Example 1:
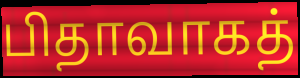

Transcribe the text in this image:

பிதாவாகத்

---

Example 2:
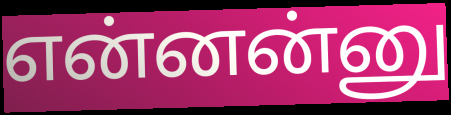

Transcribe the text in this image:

என்னன்னு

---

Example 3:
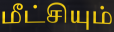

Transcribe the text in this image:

மீட்சியும்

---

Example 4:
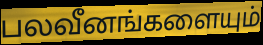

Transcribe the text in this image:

பலவீனங்களையும்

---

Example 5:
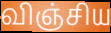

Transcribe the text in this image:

விஞ்சிய